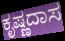
ಕೃಷ್ಣದಾಸ